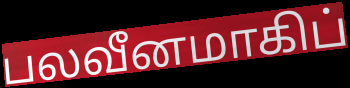
பலவீனமாகிப்